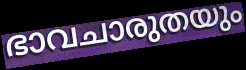
ഭാവചാരുതയും